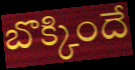
బొక్కిందే